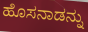
ಹೊಸನಾಡನ್ನು